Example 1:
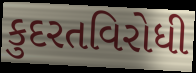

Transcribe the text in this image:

કુદરતવિરોધી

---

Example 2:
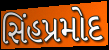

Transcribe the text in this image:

સિંહપ્રમોદ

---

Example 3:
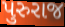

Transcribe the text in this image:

પુરુરાજ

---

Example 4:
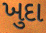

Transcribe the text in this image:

ખુદા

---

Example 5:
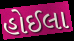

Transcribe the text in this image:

હોઈલા